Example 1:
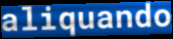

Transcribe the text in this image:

aliquando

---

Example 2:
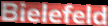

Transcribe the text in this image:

Bielefeld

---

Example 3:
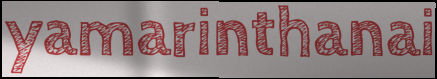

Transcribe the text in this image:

yamarinthanai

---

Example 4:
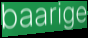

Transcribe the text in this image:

baarige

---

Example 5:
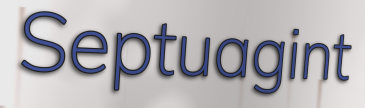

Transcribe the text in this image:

Septuagint